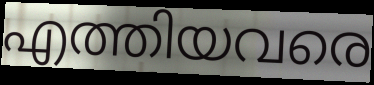
എത്തിയവരെ